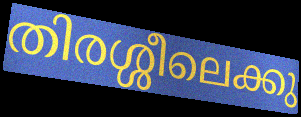
തിരശ്ശീലെക്കു